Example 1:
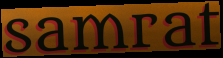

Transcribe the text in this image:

samrat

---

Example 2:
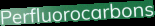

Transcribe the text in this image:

Perfluorocarbons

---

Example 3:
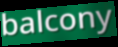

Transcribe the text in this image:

balcony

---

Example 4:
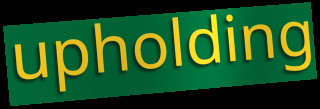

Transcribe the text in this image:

upholding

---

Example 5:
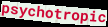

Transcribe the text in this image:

psychotropic